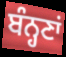
ਬੰਨ੍ਹਣਾਂ